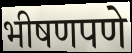
भीषणपणे